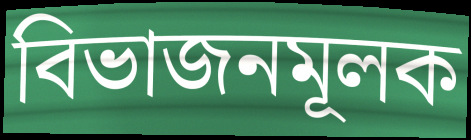
বিভাজনমূলক